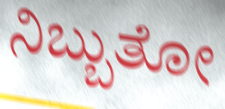
ನಿಬ್ಬುತೋ